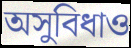
অসুবিধাও